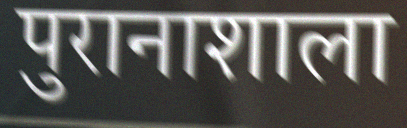
पुरानाशाला